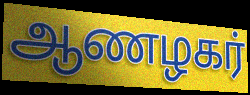
ஆணழகர்